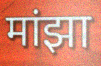
मांझा